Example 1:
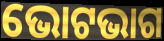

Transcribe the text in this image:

ଭୋଟଭାଗ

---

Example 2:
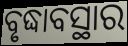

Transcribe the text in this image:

ବୃଦ୍ଧାବସ୍ଥାର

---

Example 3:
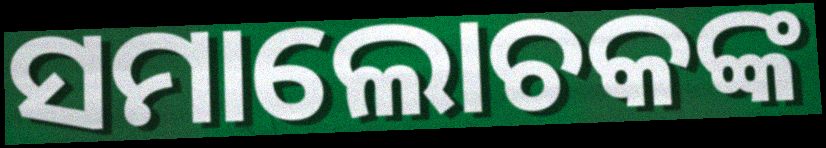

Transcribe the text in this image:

ସମାଲୋଚକଙ୍କ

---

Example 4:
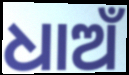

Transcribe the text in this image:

ଧାଅଁ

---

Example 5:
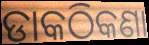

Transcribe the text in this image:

ଡାକଠିକଣା